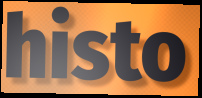
histo